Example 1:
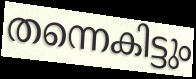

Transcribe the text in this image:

തന്നെകിട്ടും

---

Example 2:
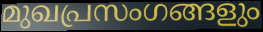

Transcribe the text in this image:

മുഖപ്രസംഗങ്ങളും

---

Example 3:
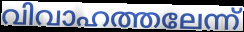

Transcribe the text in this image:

വിവാഹത്തലേന്ന്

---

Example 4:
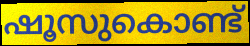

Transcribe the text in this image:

ഷൂസുകൊണ്ട്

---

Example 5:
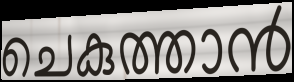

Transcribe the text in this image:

ചെകുത്താൻ